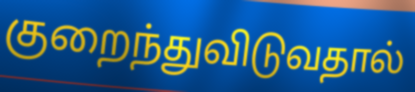
குறைந்துவிடுவதால்